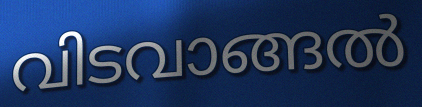
വിടവാങ്ങൽ